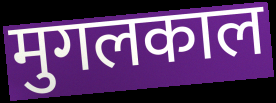
मुगलकाल